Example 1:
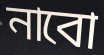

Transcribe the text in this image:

নাবো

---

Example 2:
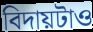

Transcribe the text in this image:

বিদায়টাও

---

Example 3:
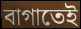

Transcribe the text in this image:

বাগাতেই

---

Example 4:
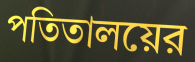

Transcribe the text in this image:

পতিতালয়ের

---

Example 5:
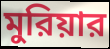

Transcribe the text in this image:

মুরিয়ার